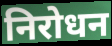
निरोधन